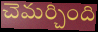
చెమర్చింది